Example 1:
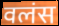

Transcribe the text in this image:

वलंस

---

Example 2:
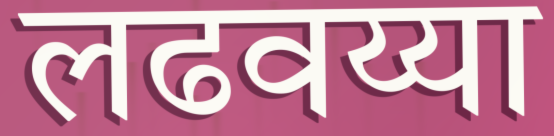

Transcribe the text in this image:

लढवय्या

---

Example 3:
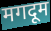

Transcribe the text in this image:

मगदूम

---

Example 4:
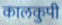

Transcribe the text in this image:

कालकुपी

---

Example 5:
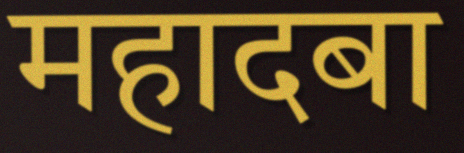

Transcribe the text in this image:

महादबा